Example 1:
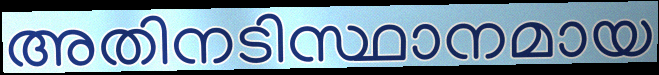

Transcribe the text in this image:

അതിനടിസ്ഥാനമായ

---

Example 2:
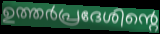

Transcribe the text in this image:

ഉത്തർപ്രദേശിന്റെ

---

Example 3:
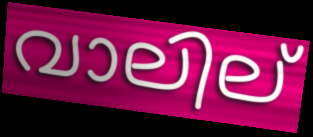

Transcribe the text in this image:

വാലില്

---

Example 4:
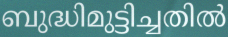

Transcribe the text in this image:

ബുദ്ധിമുട്ടിച്ചതിൽ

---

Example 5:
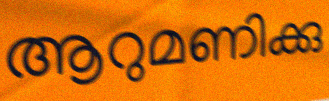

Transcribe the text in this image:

ആറുമണിക്കു